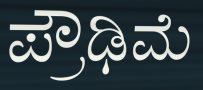
ಪ್ರೌಢಿಮೆ